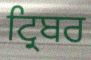
ਟ੍ਰਿਬਰ